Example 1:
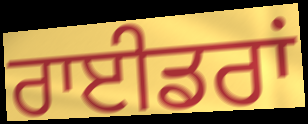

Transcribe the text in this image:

ਰਾਈਡਰਾਂ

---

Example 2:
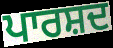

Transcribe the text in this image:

ਪਾਰਸ਼ਦ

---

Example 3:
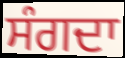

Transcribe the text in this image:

ਸੰਗਦਾ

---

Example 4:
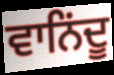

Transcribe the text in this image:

ਵਾਨਿਂਦੂ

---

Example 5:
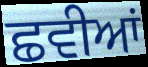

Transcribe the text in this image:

ਛਵੀਆਂ